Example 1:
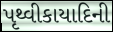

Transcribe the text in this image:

પૃથ્વીકાયાદિની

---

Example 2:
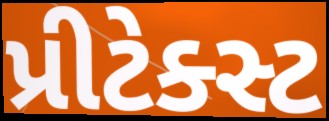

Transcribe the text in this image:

પ્રીટેક્સ્ટ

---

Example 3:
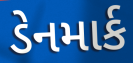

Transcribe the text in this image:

ડેનમાર્ક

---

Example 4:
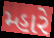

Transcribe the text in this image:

મ્હારે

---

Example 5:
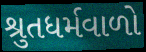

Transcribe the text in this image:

શ્રુતધર્મવાળો